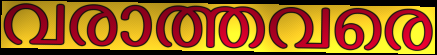
വരാത്തവരെ